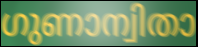
ഗുണാന്വിതാ